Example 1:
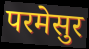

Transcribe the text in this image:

परमेसुर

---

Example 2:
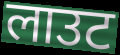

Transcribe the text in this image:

लाउट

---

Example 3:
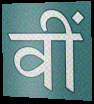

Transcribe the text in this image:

वीं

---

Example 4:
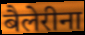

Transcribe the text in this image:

बैलेरीना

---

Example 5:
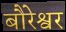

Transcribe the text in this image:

बौरेश्वर